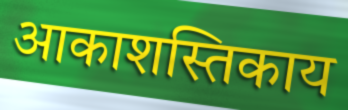
आकाशस्तिकाय